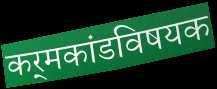
कर्मकांडविषयक